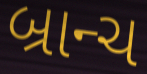
બ્રાન્ચ